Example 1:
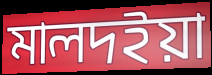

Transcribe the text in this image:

মালদইয়া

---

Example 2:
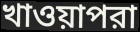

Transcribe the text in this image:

খাওয়াপরা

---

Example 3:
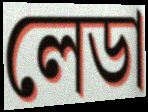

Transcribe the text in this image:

লেডা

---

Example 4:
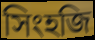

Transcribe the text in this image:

সিংহজি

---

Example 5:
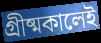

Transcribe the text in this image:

গ্রীষ্মকালেই